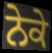
ਨੇਕੇ